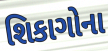
શિકાગોના